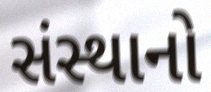
સંસ્થાનો